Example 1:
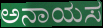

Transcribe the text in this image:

ಅನಾಯಸ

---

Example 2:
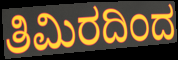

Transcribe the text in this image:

ತಿಮಿರದಿಂದ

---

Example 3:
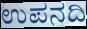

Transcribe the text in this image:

ಉಪನದಿ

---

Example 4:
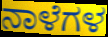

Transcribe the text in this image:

ನಾಳೆಗಳ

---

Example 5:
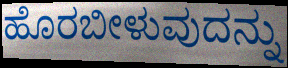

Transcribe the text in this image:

ಹೊರಬೀಳುವುದನ್ನು